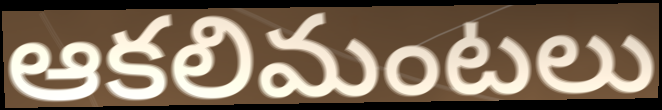
ఆకలిమంటలు